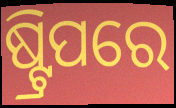
ଷ୍ଟ୍ରିପରେ